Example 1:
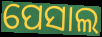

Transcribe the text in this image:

ପେସାଲ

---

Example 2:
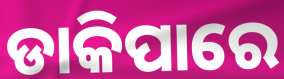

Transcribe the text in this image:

ଡାକିପାରେ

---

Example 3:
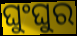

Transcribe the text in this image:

ଘୁଂଘୁର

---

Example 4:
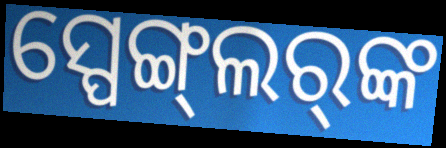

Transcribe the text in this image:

ସ୍ପେଙ୍ଗ୍‌ଲର୍‌ଙ୍କ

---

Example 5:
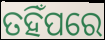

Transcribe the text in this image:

ତହିଁପରେ